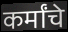
कर्मांचे